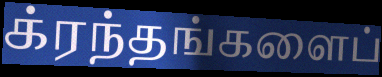
க்ரந்தங்களைப்